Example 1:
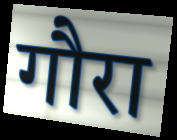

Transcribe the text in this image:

गौरा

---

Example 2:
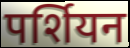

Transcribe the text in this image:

पर्शियन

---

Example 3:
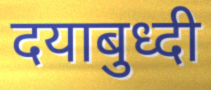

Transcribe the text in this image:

दयाबुध्दी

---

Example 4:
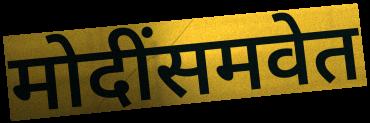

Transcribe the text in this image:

मोदींसमवेत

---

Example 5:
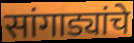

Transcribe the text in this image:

सांगाड्यांचे